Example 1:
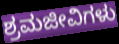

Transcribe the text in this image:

ಶ್ರಮಜೀವಿಗಳು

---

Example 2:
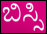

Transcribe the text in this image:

ಬಿಸ್ಸಿ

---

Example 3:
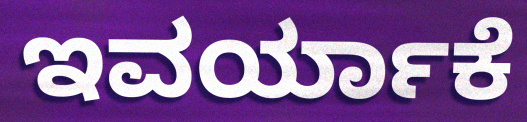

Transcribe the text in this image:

ಇವರ್ಯಾಕೆ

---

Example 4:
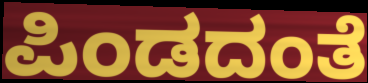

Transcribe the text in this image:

ಪಿಂಡದಂತೆ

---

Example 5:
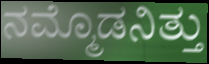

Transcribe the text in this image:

ನಮ್ಮೊಡನಿತ್ತು